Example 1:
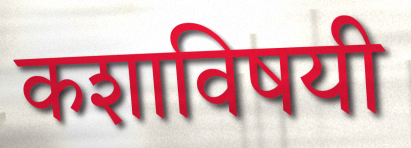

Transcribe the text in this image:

कशाविषयी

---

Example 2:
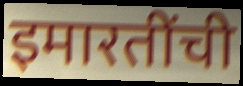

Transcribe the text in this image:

इमारतींची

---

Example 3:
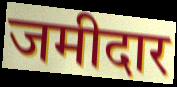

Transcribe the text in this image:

जमीदार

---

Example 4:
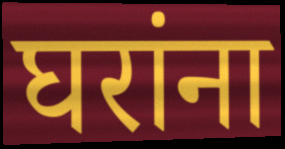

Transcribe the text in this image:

घरांना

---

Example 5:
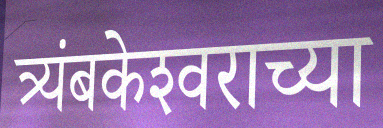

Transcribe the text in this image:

त्र्यंबकेश्‍वराच्या